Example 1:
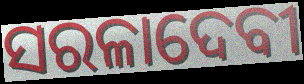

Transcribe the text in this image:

ସରଳାଦେବୀ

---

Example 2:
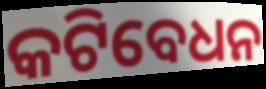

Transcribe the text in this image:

କଟିବେଧନ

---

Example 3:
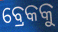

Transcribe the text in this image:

ବ୍ରେକକୁ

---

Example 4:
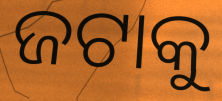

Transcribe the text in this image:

ଜଟାକୁ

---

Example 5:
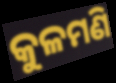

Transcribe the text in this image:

କୁଳମଣି